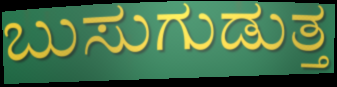
ಬುಸುಗುಡುತ್ತ